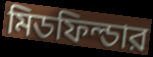
মিডফিল্ডার